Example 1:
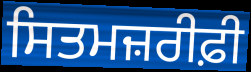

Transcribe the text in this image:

ਸਿਤਮਜ਼ਰੀਫ਼ੀ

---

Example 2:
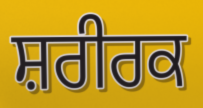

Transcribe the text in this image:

ਸ਼ਰੀਰਕ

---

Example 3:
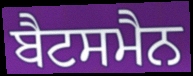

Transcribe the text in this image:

ਬੈਟਸਮੈਨ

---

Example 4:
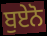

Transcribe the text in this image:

ਬੁਏਨੋ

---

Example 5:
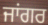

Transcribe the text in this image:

ਜਾਂਗਰ